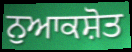
ਨੁਆਕਸ਼ੋਤ